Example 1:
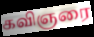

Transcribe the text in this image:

கவிஞரை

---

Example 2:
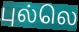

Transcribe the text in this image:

புல்லெ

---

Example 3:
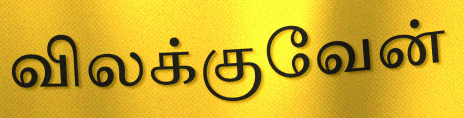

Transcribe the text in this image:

விலக்குவேன்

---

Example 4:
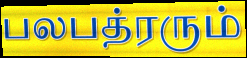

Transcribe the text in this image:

பலபத்ரரும்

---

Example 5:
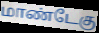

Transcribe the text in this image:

மாண்டேகு